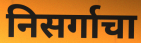
निसर्गाचा